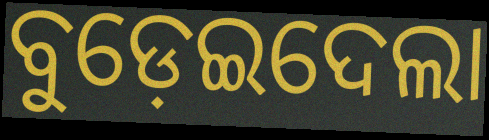
ବୁଡ଼େଇଦେଲା